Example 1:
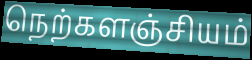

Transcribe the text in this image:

நெற்களஞ்சியம்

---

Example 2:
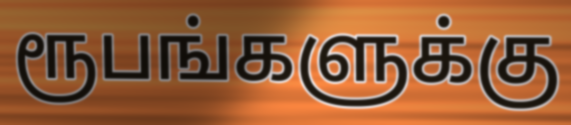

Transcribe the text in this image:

ரூபங்களுக்கு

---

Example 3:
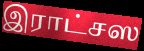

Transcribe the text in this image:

இராட்சஸ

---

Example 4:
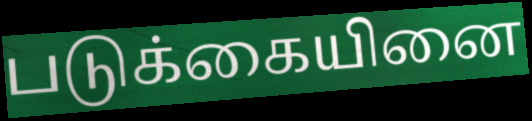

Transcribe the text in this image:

படுக்கையினை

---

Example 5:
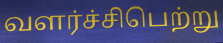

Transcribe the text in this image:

வளர்ச்சிபெற்று